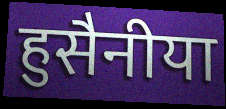
हुसैनीया